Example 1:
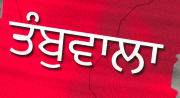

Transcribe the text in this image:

ਤੰਬੁਵਾਲਾ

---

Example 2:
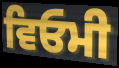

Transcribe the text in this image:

ਵਿਓਮੀ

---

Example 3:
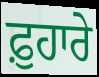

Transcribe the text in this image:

ਫ਼ੁਹਾਰੇ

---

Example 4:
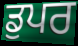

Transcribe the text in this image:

ਡੁਪਰ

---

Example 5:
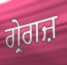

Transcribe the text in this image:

ਗ੍ਰੇਗਜ਼